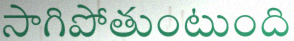
సాగిపోతుంటుంది